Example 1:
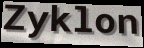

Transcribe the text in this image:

Zyklon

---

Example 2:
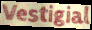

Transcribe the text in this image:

Vestigial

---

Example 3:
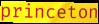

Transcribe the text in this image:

princeton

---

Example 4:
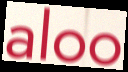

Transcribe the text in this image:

aloo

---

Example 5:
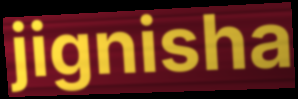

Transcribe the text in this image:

jignisha